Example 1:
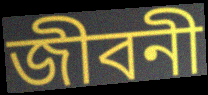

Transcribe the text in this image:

জীবনী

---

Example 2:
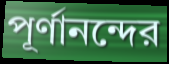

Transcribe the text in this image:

পূর্ণানন্দের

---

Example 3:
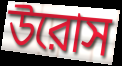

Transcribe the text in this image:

উরোস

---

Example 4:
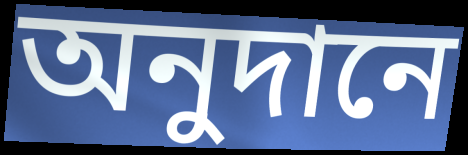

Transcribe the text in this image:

অনুদানে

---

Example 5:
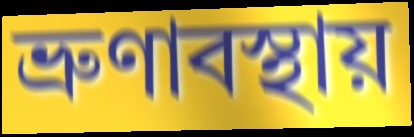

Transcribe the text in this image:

ভ্রুণাবস্থায়